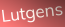
Lutgens